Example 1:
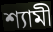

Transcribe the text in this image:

শ্যামী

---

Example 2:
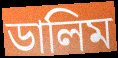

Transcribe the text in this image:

ডালিম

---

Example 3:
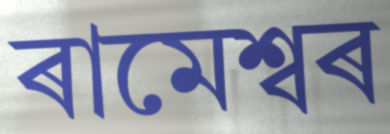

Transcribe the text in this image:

ৰামেশ্বৰ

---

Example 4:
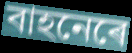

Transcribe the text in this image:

বাহনেৰে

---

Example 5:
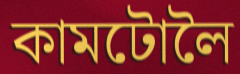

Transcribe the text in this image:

কামটোলৈ